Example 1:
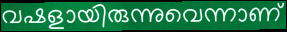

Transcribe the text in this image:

വഷളായിരുന്നുവെന്നാണ്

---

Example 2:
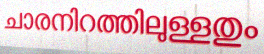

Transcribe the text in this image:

ചാരനിറത്തിലുള്ളതും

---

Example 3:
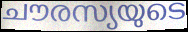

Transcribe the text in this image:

ചൗരസ്യയുടെ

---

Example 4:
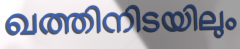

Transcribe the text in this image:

ഖത്തിനിടയിലും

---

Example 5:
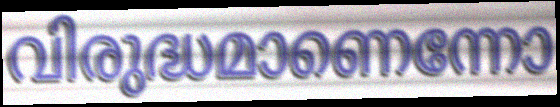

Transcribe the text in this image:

വിരുദ്ധമാണെന്നോ